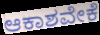
ಆಕಾಶವೇಕೆ